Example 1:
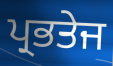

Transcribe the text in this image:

ਪ੍ਰਭਤੇਜ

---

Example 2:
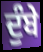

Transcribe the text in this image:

ਦੁੰਬੇ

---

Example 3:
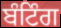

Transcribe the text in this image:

ਬੰਟਿੰਗ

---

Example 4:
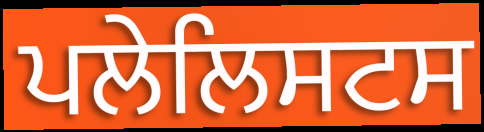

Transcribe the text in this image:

ਪਲੇਲਿਸਟਸ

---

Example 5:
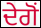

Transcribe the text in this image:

ਦੇਗੋਂ